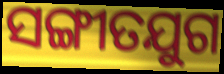
ସଙ୍ଗୀତଯୁଗ